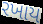
રખાય